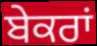
ਬੇਕਰਾਂ